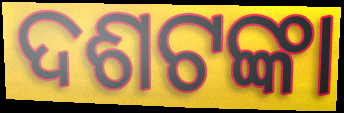
ଦଶଟଙ୍କା